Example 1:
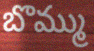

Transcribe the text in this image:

బొమ్ము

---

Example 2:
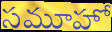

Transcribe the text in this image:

సమూహో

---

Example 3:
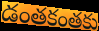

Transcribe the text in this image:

డంతకంతకు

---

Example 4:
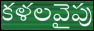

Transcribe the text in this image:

కళలవైపు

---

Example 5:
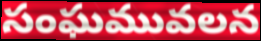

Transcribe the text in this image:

సంఘమువలన